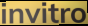
invitro